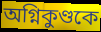
অগ্নিকুণ্ডকে